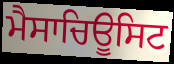
ਮੈਸਾਚਿਊਸਿਟ